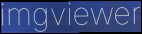
imgviewer